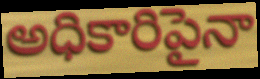
అధికారిపైనా